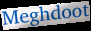
Meghdoot